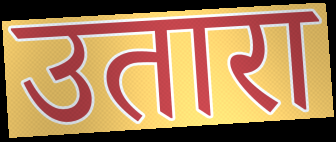
उतारा